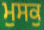
ਮੁਸਕੁ